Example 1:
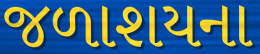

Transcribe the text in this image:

જળાશયના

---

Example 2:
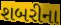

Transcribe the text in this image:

શબરીના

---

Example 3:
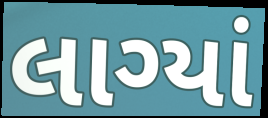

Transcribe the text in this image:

લાગ્યાં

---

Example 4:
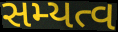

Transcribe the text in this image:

સમ્યત્વ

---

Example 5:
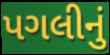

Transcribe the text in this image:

પગલીનું